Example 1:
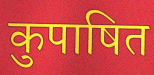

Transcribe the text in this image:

कुपाषित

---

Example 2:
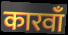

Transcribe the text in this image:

कारवाँ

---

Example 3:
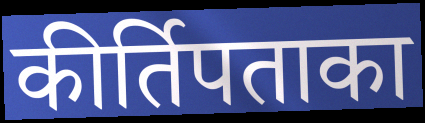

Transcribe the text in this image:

कीर्तिपताका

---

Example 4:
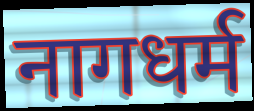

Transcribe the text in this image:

नागधर्म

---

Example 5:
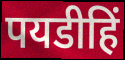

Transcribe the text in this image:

पयडीहिं